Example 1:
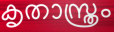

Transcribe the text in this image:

കൃതാസ്ത്രം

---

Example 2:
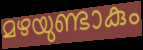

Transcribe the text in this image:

മഴയുണ്ടാകും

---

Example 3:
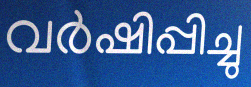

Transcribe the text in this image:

വർഷിപ്പിച്ചു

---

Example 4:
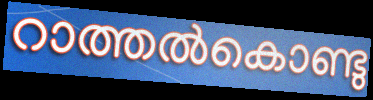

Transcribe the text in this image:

റാത്തൽകൊണ്ടു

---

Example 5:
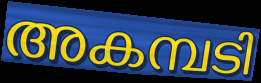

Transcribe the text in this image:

അകമ്പടി